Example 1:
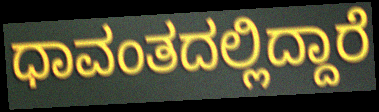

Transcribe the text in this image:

ಧಾವಂತದಲ್ಲಿದ್ದಾರೆ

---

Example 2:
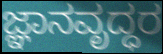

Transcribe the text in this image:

ಜ್ಞಾನವೃದ್ಧರ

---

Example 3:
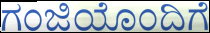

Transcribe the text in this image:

ಗಂಜಿಯೊಂದಿಗೆ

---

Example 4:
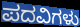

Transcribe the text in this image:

ಪದವಿಗಳು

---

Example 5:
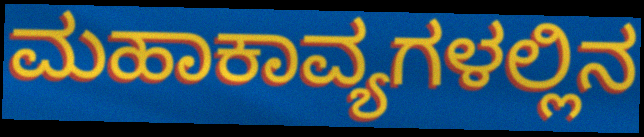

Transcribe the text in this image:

ಮಹಾಕಾವ್ಯಗಳಲ್ಲಿನ